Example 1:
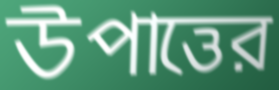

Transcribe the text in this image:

উপাত্তের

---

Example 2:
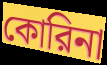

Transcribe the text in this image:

কোরিনা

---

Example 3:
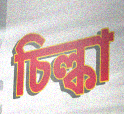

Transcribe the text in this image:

চিল্কা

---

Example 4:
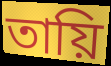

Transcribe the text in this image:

তায়ি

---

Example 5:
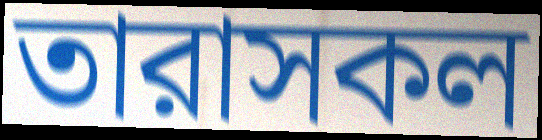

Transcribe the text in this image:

তারাসকল